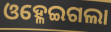
ଓହ୍ଳେଇଗଲା